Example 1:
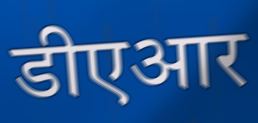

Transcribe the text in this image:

डीएआर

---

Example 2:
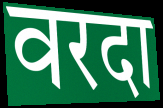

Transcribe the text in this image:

वरदा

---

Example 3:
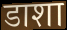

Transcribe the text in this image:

डाशा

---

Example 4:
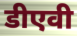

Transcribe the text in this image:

डीएवी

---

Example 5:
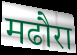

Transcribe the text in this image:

मढौरा